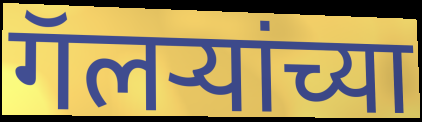
गॅलर्‍यांच्या